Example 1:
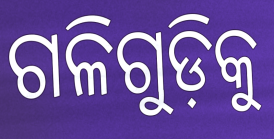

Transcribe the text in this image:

ଗଳିଗୁଡ଼ିକୁ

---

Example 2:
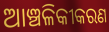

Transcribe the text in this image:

ଆଞ୍ଚଳିକୀକରଣ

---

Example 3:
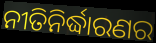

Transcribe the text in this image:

ନୀତିନିର୍ଦ୍ଧାରଣର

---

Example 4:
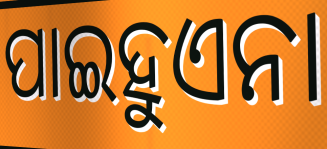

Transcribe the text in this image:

ପାଇହୁଏନା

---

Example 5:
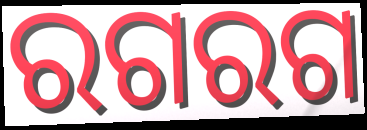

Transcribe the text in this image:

ରଗରଗ